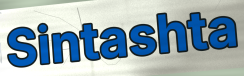
Sintashta